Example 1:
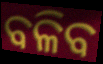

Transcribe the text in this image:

ବଳିବ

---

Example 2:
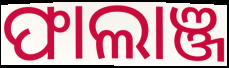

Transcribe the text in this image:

ଫାଲାଞ୍ଜ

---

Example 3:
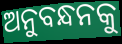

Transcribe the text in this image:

ଅନୁବନ୍ଧନକୁ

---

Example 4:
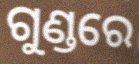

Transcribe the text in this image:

ଗୁଣ୍ଡରେ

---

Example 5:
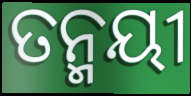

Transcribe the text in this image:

ତନ୍ମୟୀ